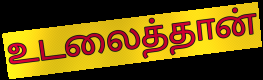
உடலைத்தான்